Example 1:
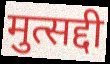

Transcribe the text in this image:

मुत्सद्दी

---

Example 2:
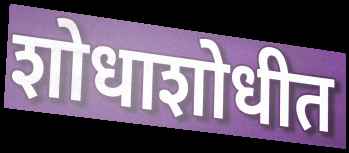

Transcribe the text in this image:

शोधाशोधीत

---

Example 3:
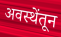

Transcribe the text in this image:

अवस्थेंतून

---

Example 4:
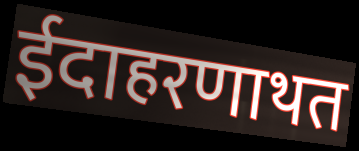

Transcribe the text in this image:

ईदाहरणाथत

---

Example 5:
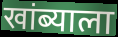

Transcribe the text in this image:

खांब्याला